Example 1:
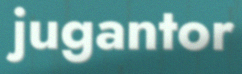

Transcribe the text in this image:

jugantor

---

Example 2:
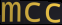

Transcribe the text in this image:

mcc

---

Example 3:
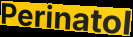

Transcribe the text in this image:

Perinatol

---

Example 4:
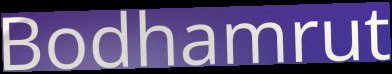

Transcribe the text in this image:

Bodhamrut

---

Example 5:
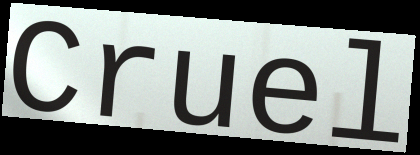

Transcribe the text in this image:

Cruel